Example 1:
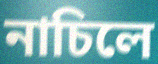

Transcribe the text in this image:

নাচিলে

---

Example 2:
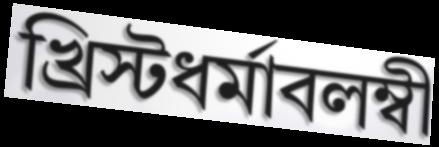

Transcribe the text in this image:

খ্রিস্টধর্মাবলম্বী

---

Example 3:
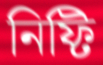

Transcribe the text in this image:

নিফ্টি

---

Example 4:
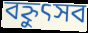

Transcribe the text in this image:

বহ্নুৎসব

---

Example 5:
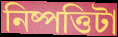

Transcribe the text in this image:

নিষ্পত্তিটা